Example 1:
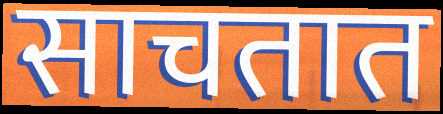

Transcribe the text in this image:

साचतात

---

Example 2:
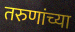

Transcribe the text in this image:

तरुणांच्या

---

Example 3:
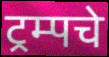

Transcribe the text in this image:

ट्रम्पचे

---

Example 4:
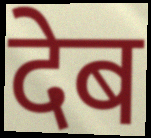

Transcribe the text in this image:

देब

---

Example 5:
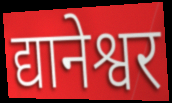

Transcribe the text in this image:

द्यानेश्वर